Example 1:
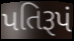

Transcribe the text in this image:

પતિરૂપં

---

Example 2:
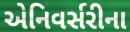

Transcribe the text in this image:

એનિવર્સરીના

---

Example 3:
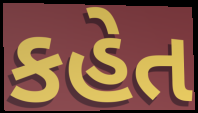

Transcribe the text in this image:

કહેત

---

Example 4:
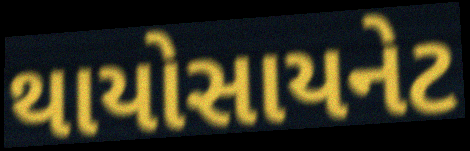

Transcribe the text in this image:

થાયોસાયનેટ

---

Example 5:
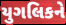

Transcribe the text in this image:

યુગલિકને